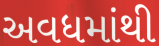
અવધમાંથી